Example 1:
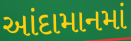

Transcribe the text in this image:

આંદામાનમાં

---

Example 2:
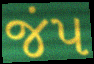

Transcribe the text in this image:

જંપ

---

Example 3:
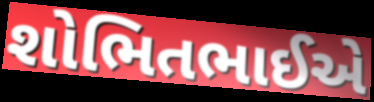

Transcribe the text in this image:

શોભિતભાઈએ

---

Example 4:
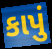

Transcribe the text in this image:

કાપું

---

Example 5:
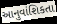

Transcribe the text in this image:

આનુવાંશિકતા